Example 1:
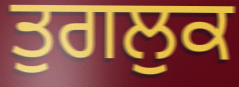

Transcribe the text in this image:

ਤੁਗਲੁਕ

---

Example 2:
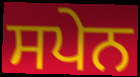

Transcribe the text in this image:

ਸਪੇਨ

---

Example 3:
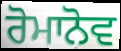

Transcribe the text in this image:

ਰੋਮਾਨੋਵ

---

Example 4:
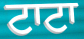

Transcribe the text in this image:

ਟਾਟਾ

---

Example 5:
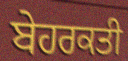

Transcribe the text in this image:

ਬੇਹਰਕਤੀ